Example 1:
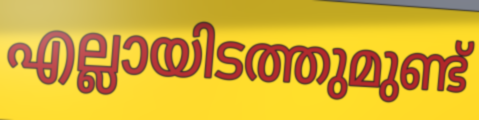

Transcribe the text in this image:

എല്ലായിടത്തുമുണ്ട്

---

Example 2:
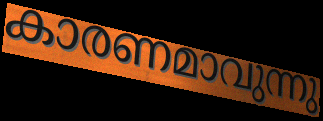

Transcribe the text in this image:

കാരണമാവുന്നു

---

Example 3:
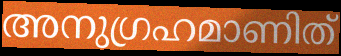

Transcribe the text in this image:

അനുഗ്രഹമാണിത്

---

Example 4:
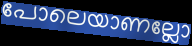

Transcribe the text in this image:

പോലെയാണല്ലോ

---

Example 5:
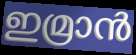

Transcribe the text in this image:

ഇമ്രാൻ